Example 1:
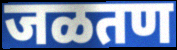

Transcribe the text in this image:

जळतण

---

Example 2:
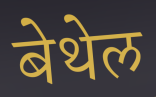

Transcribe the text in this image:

बेथेल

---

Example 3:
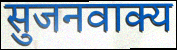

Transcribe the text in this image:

सुजनवाक्य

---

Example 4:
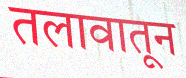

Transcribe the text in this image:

तलावातून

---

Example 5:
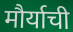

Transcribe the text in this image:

मौर्याची